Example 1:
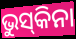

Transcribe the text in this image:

ଭୁସ୍‌କିନା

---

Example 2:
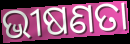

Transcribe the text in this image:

ଭୀଷଣତା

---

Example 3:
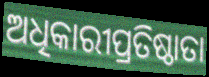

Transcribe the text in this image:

ଅଧିକାରୀପ୍ରତିଷ୍ଠାତା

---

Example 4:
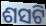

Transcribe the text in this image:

ଶସଟି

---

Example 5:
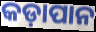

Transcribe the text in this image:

କଡ଼ାପାନ